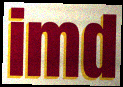
imd